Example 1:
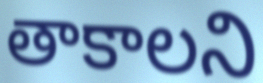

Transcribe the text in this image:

తాకాలని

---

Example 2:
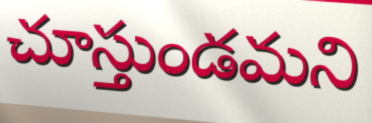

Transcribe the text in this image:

చూస్తుండమని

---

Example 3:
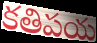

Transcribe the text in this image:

కతిపయ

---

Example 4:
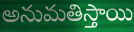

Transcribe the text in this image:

అనుమతిస్తాయి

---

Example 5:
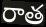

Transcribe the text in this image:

రాత